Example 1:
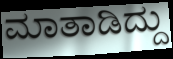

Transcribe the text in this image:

ಮಾತಾಡಿದ್ದು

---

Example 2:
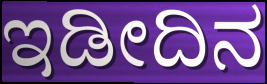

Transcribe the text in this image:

ಇಡೀದಿನ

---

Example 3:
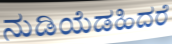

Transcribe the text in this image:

ನುಡಿಯೆಡಹಿದರೆ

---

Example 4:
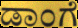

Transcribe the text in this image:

ಡಾಂಗೆ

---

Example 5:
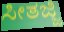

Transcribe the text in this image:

ಸೀತಜ್ಜಿ